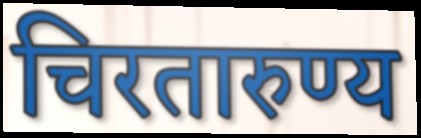
चिरतारुण्य